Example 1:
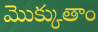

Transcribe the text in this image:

మొక్కుతాం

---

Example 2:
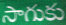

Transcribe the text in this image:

సాగుకు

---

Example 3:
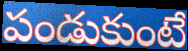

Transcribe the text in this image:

పండుకుంటే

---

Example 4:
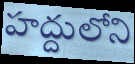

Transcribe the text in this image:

హద్దులోని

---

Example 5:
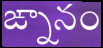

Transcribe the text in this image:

ఙ్నానం